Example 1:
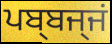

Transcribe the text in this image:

ਪਬ੍ਬਜ੍ਜਂ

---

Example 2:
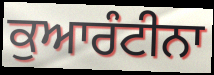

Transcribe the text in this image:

ਕੁਆਰੰਟੀਨਾ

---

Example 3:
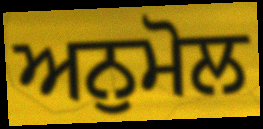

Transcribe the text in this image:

ਅਨੁਮੋਲ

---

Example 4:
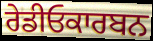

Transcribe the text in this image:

ਰੇਡੀਓਕਾਰਬਨ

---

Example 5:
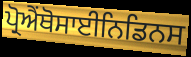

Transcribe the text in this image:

ਪ੍ਰੋਐਂਥੋਸਾਈਨਿਡਿਨਸ